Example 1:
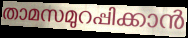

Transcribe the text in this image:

താമസമുറപ്പിക്കാൻ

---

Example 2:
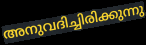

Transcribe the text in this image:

അനുവദിച്ചിരിക്കുന്നു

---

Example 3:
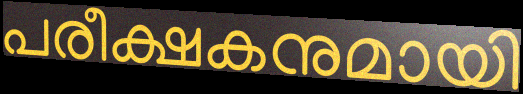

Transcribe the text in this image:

പരീക്ഷകനുമായി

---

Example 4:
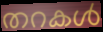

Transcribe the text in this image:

തറകൾ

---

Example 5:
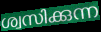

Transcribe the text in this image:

ശ്വസിക്കുന്ന